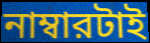
নাম্বারটাই